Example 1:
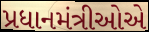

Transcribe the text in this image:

પ્રધાનમંત્રીઓએ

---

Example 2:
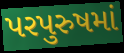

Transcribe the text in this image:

પરપુરુષમાં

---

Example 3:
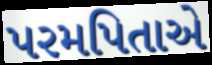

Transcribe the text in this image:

પરમપિતાએ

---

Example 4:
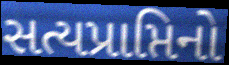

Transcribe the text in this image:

સત્યપ્રાપ્તિનો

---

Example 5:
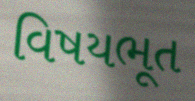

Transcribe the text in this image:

વિષયભૂત